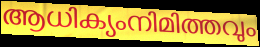
ആധിക്യംനിമിത്തവും